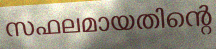
സഫലമായതിന്റെ